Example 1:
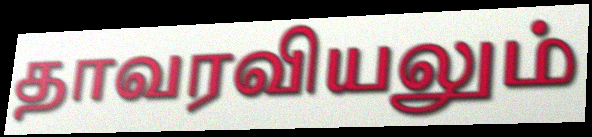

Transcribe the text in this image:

தாவரவியலும்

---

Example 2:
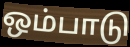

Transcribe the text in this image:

ஒம்பாடு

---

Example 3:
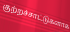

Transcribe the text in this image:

குற்றச்சாட்டுகளாக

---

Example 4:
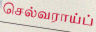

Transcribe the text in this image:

செல்வராய்ப்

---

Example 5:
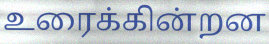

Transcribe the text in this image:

உரைக்கின்றன